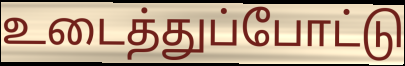
உடைத்துப்போட்டு